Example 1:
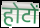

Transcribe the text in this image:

होटों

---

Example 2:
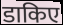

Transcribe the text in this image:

डाकिए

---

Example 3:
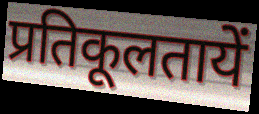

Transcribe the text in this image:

प्रतिकूलतायें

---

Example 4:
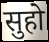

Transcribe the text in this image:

सुहो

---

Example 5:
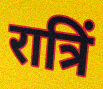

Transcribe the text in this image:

रात्रिं